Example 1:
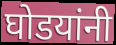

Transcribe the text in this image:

घोडयांनी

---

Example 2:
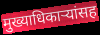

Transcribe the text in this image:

मुख्याधिकाऱ्यांसह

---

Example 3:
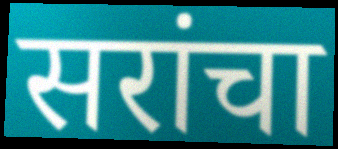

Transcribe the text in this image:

सरांचा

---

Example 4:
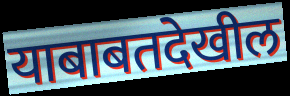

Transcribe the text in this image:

याबाबतदेखील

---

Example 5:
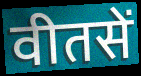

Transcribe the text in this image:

वीतसें